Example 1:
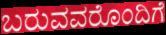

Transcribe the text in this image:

ಬರುವವರೊಂದಿಗೆ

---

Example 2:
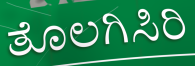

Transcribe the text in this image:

ತೊಲಗಿಸಿರಿ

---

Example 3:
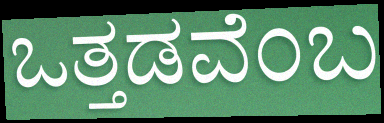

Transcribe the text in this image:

ಒತ್ತಡವೆಂಬ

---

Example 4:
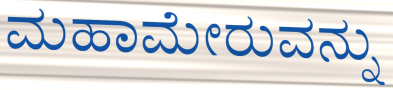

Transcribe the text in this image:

ಮಹಾಮೇರುವನ್ನು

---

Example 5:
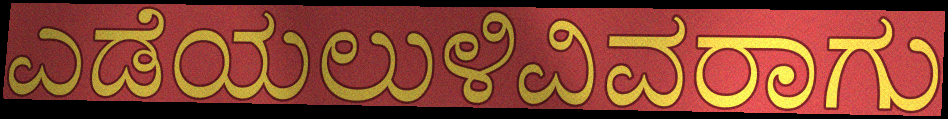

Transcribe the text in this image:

ಎಡೆಯಲುಳಿವಿವರಾಗು